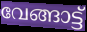
വേങ്ങാട്ട്